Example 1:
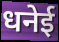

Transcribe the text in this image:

धनेई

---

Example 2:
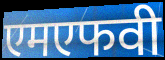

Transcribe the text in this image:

एमएफवी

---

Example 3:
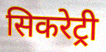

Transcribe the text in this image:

सिकरेट्री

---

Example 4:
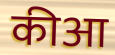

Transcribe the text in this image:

कीआ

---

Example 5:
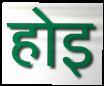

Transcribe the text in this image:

होइ